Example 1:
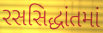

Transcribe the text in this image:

રસસિદ્ધાંતમાં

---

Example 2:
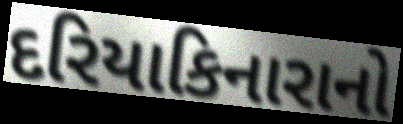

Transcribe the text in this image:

દરિયાકિનારાનો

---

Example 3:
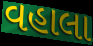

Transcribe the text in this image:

વહાલા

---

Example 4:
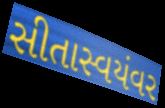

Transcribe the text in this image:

સીતાસ્વયંવર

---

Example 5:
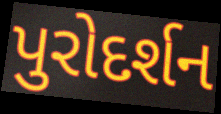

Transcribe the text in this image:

પુરોદર્શન